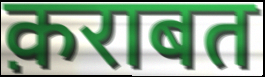
क़राबत